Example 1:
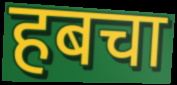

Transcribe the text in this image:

हबचा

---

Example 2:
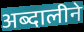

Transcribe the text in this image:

अब्दालीने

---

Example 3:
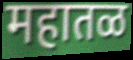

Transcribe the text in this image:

महातळ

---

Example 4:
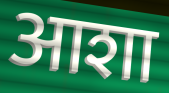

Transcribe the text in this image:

आशा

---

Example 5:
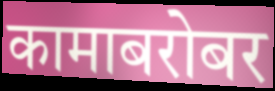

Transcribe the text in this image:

कामाबरोबर